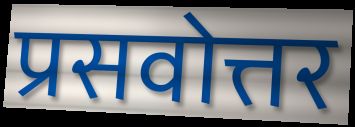
प्रसवोत्तर